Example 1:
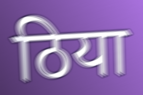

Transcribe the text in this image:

ठिया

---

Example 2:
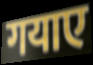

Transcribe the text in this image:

गयाए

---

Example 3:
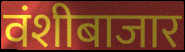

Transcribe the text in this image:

वंशीबाजार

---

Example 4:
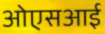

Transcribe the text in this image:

ओएसआई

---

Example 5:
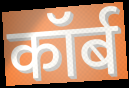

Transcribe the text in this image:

कॉर्ब